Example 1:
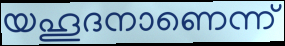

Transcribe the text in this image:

യഹൂദനാണെന്ന്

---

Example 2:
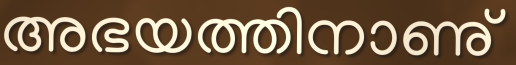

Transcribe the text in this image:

അഭയത്തിനാണു്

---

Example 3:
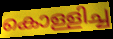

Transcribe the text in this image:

കൊള്ളിച്ച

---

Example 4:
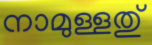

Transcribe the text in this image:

നാമുള്ളതു്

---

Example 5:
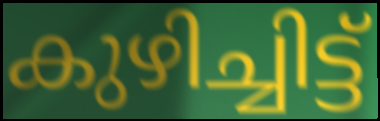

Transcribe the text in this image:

കുഴിച്ചിട്ട്